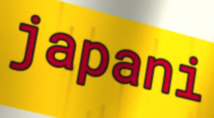
japani